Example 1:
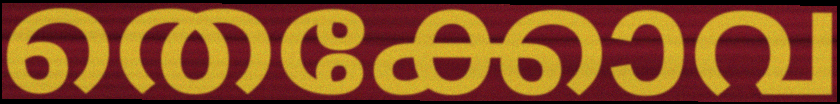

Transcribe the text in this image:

തെക്കോവ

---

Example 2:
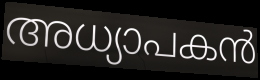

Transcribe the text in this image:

അധ്യാപകൻ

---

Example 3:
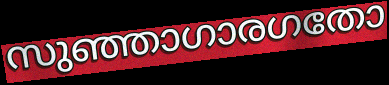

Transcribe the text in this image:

സുഞ്ഞാഗാരഗതോ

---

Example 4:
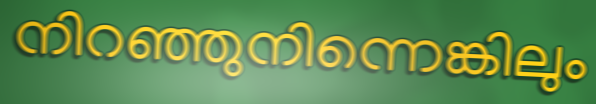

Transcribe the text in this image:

നിറഞ്ഞുനിന്നെങ്കിലും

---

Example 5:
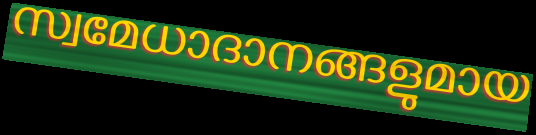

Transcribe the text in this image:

സ്വമേധാദാനങ്ങളുമായ